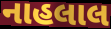
નાહલાલ